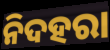
ନିଦହରା